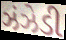
ઝંઝેડી